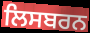
ਲਿਸਬਰਨ